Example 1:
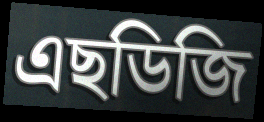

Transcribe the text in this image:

এছডিজি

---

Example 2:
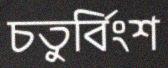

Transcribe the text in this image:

চতুৰ্বিংশ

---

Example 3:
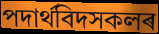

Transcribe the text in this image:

পদাৰ্থবিদসকলৰ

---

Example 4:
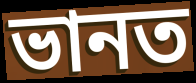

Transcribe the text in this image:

ভানত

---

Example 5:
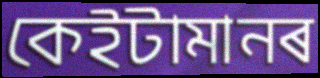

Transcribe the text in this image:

কেইটামানৰ